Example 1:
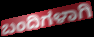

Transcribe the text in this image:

ಬಂದಿಗಳಾಗಿ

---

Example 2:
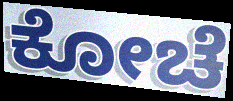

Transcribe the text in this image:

ಕೋಚೆ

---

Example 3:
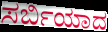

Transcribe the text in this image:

ಸರ್ಬಿಯಾದ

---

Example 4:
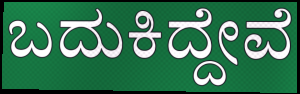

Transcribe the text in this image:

ಬದುಕಿದ್ದೇವೆ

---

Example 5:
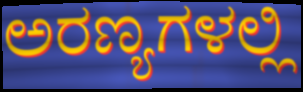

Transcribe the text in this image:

ಅರಣ್ಯಗಳಲ್ಲಿ